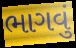
ભાગવું